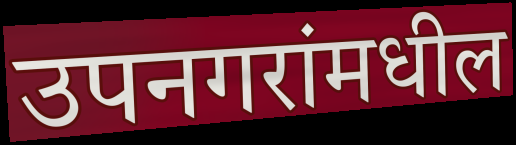
उपनगरांमधील